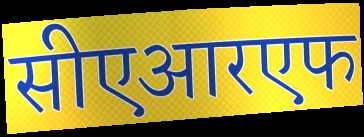
सीएआरएफ